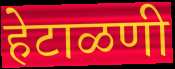
हेटाळणी